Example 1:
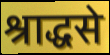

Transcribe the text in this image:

श्राद्धसे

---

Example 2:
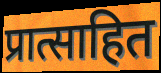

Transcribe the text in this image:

प्रात्साहित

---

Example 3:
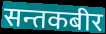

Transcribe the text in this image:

सन्तकबीर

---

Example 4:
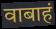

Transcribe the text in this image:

वाबाहं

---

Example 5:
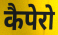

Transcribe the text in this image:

कैपेरो